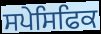
ਸਪੇਸਿਫਿਕ